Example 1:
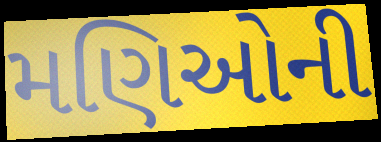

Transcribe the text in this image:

મણિઓની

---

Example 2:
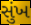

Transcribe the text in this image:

સુંખ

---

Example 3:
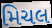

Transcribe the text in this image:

મિચલ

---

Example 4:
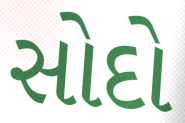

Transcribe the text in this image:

સોદો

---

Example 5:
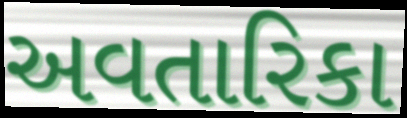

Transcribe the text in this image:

અવતારિકા